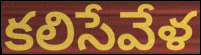
కలిసేవేళ